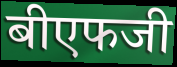
बीएफजी